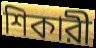
শিকারী